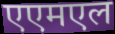
एएमएल